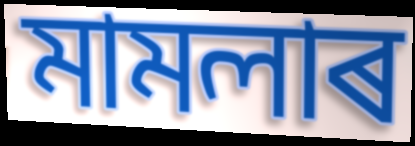
মামলাৰ